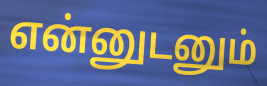
என்னுடனும்